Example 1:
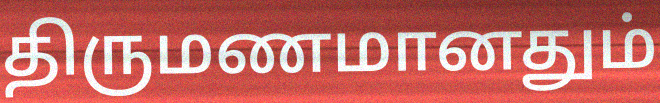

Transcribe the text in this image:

திருமணமானதும்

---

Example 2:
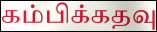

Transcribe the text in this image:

கம்பிக்கதவு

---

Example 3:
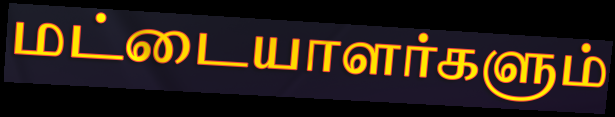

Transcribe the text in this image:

மட்டையாளர்களும்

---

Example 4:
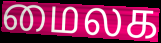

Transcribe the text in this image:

மைலக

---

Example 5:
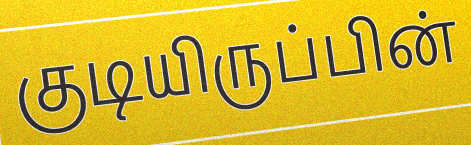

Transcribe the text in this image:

குடியிருப்பின்